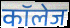
कॉलेज